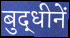
बुद्धीनें